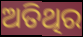
ଅତିଥିର